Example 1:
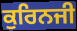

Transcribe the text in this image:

ਕੁਰਿਨਜੀ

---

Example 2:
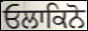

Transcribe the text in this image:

ਓਲਾਕਿਨੋ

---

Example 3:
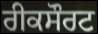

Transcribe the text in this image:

ਰੀਕਸੌਰਟ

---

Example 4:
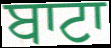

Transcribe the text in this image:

ਬਾਟਾ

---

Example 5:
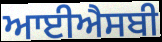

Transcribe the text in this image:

ਆਈਐਸਬੀ